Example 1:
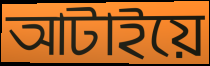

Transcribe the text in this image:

আটাইয়ে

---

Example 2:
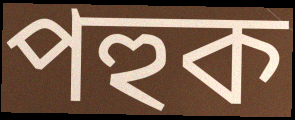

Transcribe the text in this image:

পহুক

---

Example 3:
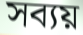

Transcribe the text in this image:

সব্যয়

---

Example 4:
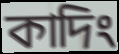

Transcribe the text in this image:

কাদিং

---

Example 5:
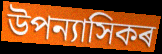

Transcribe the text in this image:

উপন্যাসিকৰ